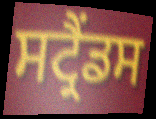
ਸਟ੍ਰੈਂਡਸ